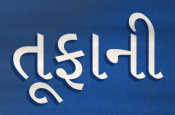
તૂફાની